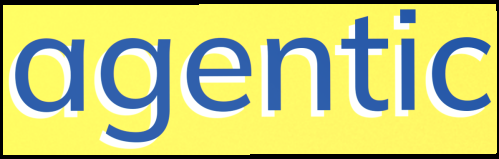
agentic